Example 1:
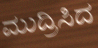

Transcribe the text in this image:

ಮುದ್ರಿಸಿದ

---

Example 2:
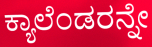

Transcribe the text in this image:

ಕ್ಯಾಲೆಂಡರನ್ನೇ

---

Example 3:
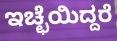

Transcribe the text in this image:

ಇಚ್ಛೆಯಿದ್ದರೆ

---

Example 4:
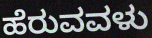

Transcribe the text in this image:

ಹೆರುವವಳು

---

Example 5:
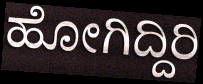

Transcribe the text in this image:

ಹೋಗಿದ್ದಿರಿ